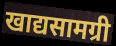
खाद्यसामग्री